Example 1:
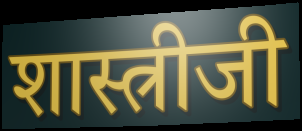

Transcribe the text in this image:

शास्त्रीजी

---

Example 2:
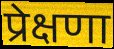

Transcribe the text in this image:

प्रेक्षणा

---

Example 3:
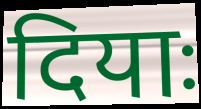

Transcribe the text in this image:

दियाः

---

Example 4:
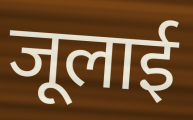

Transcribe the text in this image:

जूलाई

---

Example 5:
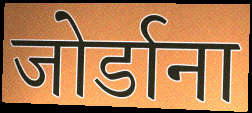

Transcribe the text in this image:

जोर्डाना